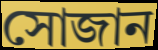
সোজান